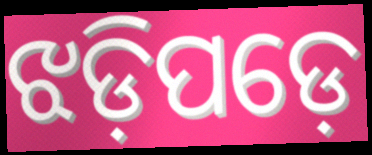
ଝଡ଼ିପଡ଼େ